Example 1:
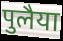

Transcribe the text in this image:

पुलैया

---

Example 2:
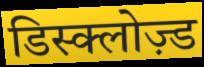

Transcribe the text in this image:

डिस्क्लोज़्ड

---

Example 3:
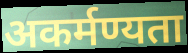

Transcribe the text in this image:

अकर्मण्यता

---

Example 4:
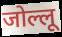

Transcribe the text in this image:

जोल्लू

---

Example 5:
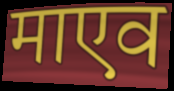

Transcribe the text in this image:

माएव